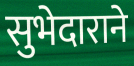
सुभेदाराने